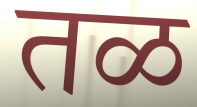
तळ